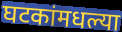
घटकांमधल्या